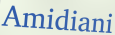
Amidiani